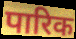
पारिक